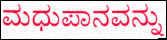
ಮಧುಪಾನವನ್ನು